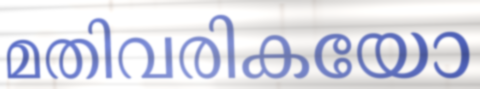
മതിവരികയോ